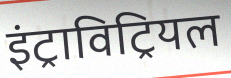
इंट्राविट्रियल